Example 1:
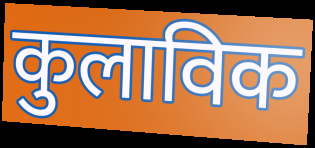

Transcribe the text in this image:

कुलाविक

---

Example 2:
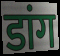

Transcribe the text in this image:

डांग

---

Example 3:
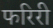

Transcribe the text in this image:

फरिरी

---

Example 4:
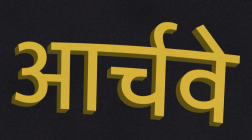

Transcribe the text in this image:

आर्चवे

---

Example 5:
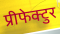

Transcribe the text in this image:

प्रीफेक्टुर